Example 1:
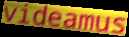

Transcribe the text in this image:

videamus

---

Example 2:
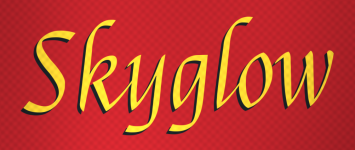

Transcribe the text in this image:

Skyglow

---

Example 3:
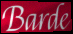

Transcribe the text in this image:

Barde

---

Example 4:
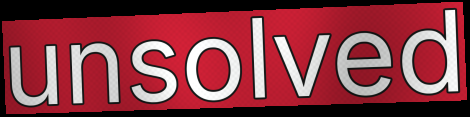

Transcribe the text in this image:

unsolved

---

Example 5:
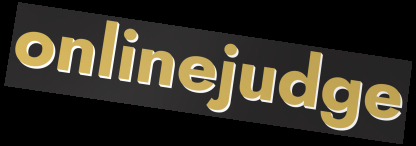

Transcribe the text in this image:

onlinejudge